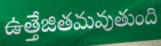
ఉత్తేజితమవుతుంది